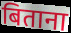
बिताना